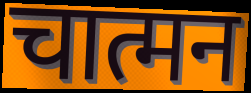
चात्मन